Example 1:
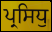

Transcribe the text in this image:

ਪ੍ਰਸਿਧੁ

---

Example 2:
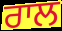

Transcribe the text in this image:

ਰਾਲ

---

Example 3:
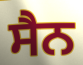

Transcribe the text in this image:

ਸੈਨ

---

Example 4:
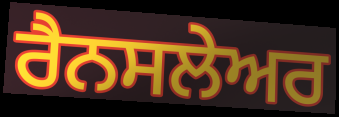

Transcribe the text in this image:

ਰੈਨਸਲੇਅਰ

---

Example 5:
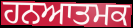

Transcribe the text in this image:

ਹਨਆਤਮਕ